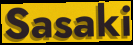
Sasaki